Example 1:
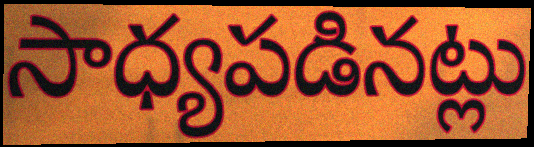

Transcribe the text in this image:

సాధ్యపడినట్లు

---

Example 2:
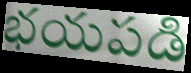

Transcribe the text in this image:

భయపడి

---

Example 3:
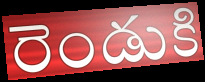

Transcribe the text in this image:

రెండుకి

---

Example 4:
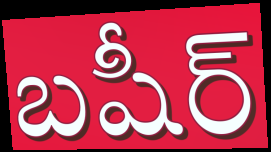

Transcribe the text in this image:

బషీర్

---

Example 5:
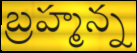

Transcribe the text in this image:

బ్రహ్మన్న